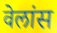
वेलांस